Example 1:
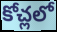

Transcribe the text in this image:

కోచ్లలో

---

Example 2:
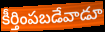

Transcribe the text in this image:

కీర్తింపబడేవాడూ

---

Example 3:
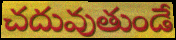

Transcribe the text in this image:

చదువుతుండే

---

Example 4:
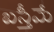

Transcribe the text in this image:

బస్తీమే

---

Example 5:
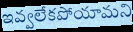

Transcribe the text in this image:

ఇవ్వలేకపోయామని